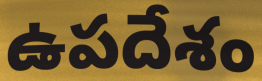
ఉపదేశం